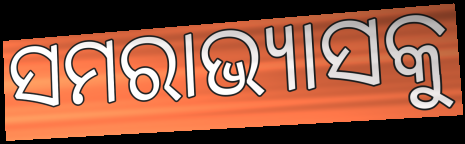
ସମରାଭ୍ୟାସକୁ